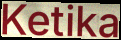
Ketika